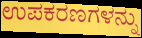
ಉಪಕರಣಗಳನ್ನು